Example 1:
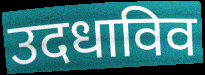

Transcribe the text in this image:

उदधाविव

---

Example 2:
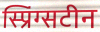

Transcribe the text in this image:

स्प्रिंग्सटीन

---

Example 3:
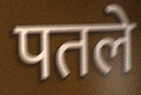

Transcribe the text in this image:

पतले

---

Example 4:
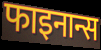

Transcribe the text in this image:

फाइनान्स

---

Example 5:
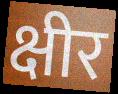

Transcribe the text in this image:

क्षीर